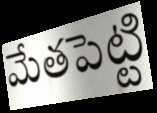
మేతపెట్టి